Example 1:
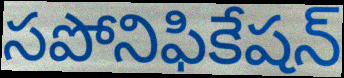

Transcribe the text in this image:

సపోనిఫికేషన్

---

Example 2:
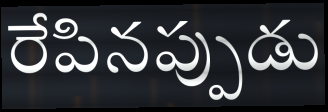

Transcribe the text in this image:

రేపినప్పుడు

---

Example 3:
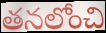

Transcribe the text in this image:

తనలోంచి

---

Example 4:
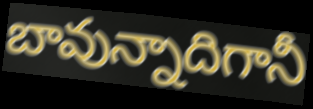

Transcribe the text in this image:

బావున్నాదిగానీ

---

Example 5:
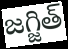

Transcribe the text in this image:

జగ్జిత్